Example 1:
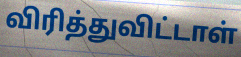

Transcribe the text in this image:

விரித்துவிட்டாள்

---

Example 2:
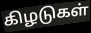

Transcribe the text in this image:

கிழடுகள்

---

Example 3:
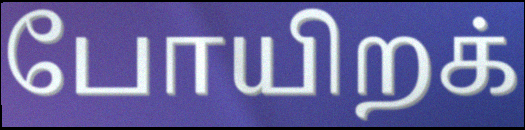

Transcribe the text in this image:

போயிறக்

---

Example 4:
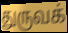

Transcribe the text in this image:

துருவக்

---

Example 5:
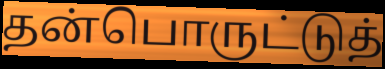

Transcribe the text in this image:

தன்பொருட்டுத்